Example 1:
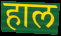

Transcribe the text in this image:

हाल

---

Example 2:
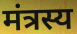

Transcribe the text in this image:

मंत्रस्य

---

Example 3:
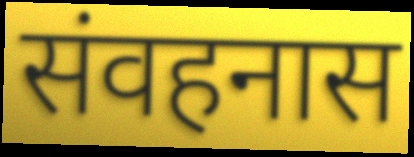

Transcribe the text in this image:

संवहनास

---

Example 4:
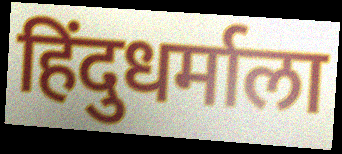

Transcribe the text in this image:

हिंदुधर्माला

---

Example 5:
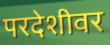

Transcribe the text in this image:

परदेशीवर